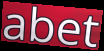
abet